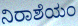
ನಿರಾಶೆಯಂ